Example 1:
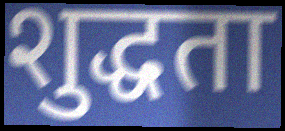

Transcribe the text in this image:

शुद्धता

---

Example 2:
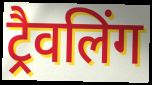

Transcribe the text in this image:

ट्रैवलिंग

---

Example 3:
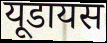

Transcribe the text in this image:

यूडायस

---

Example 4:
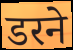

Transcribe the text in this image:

डरने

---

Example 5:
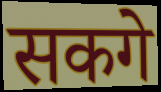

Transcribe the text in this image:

सकगे